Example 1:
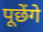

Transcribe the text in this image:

पूछेंगे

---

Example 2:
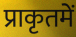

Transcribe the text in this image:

प्राकृतमें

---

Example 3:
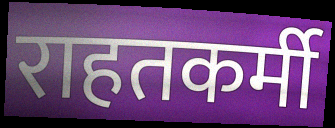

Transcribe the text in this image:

राहतकर्मी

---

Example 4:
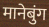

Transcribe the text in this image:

मानेबुंग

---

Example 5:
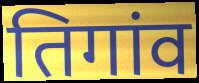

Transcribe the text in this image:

तिगांव